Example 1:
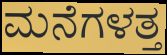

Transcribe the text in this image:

ಮನೆಗಳತ್ತ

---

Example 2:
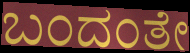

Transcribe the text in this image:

ಬಂದಂತೇ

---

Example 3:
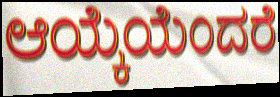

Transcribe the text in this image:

ಆಯ್ಕೆಯೆಂದರೆ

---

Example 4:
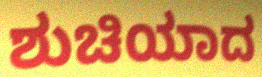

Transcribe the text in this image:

ಶುಚಿಯಾದ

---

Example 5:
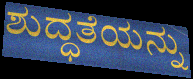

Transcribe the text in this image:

ಶುದ್ಧತೆಯನ್ನು